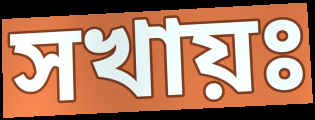
সখায়ঃ